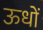
ऊधों